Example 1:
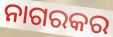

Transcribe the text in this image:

ନାଗରକର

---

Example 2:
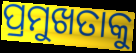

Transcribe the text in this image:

ପ୍ରମୁଖତାକୁ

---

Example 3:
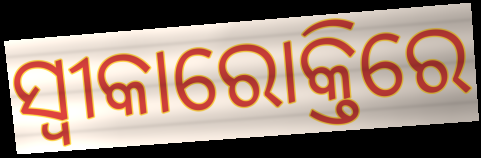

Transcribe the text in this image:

ସ୍ୱୀକାରୋକ୍ତିରେ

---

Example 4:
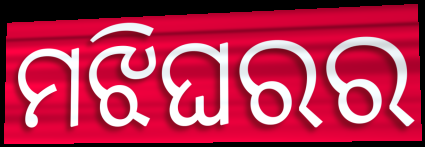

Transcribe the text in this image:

ମଝିଘରର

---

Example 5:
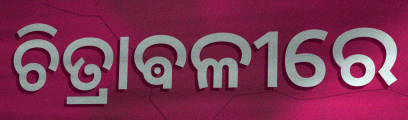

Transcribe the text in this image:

ଚିତ୍ରାଵଳୀରେ